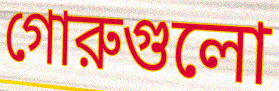
গোরুগুলো